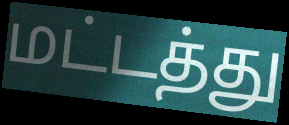
மட்டத்து